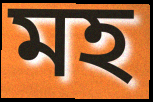
মহ